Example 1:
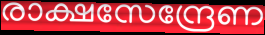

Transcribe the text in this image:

രാക്ഷസേന്ദ്രേണ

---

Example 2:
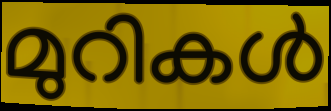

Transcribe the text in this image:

മുറികൾ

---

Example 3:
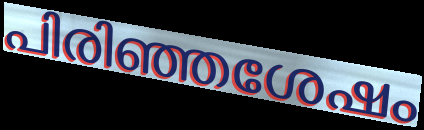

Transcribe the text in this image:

പിരിഞ്ഞശേഷം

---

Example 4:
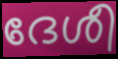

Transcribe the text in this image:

ദേശീ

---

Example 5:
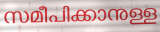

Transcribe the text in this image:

സമീപിക്കാനുള്ള